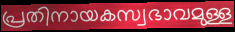
പ്രതിനായകസ്വഭാവമുള്ള